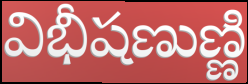
విభీషణుణ్ణి